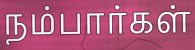
நம்பார்கள்